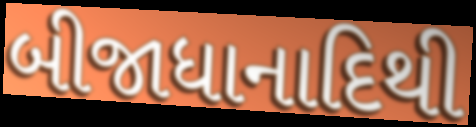
બીજાધાનાદિથી